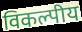
विकल्पीय